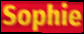
Sophie